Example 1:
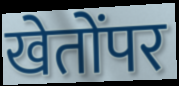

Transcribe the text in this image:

खेतोंपर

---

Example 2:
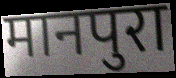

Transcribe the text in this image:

मानपुरा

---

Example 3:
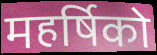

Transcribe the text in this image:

महर्षिको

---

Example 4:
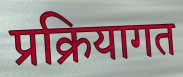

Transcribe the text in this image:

प्रक्रियागत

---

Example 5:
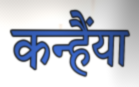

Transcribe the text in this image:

कन्हैंया